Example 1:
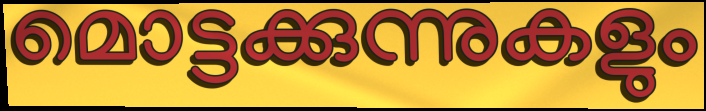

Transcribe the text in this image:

മൊട്ടക്കുന്നുകളും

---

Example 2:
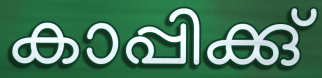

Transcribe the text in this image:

കാപ്പിക്കു്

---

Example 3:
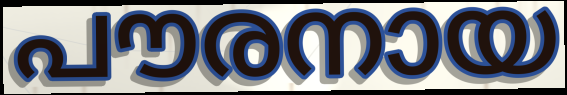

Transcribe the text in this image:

പൗരനായ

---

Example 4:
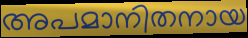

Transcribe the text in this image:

അപമാനിതനായ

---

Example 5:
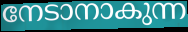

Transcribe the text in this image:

നേടാനാകുന്ന